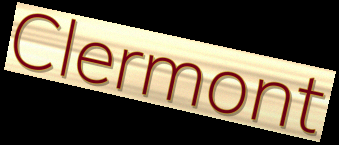
Clermont